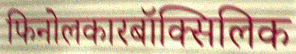
फिनोलकारबॉक्सिलिक